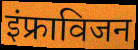
इंफ्राविजन